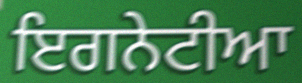
ਇਗਨੇਟੀਆ